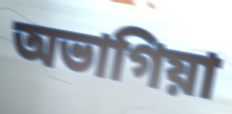
অভাগিয়া